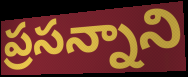
ప్రసన్నాని